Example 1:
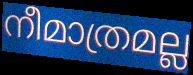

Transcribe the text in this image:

നീമാത്രമല്ല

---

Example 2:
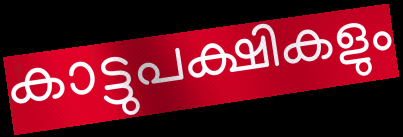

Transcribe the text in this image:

കാട്ടുപക്ഷികളും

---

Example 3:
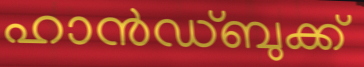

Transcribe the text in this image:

ഹാൻഡ്ബുക്ക്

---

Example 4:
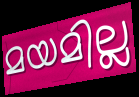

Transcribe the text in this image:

മയമില്ല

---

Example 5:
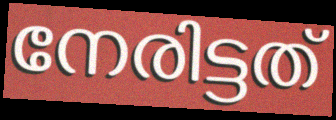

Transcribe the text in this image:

നേരിട്ടത്